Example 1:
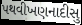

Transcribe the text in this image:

પથવીખણનાદીસુ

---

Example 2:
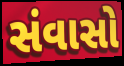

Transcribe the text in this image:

સંવાસો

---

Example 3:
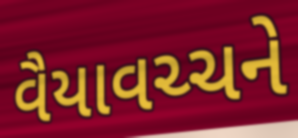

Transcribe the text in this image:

વૈયાવચ્ચને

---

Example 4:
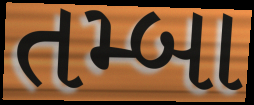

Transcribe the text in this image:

તમ્બા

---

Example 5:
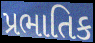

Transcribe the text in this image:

પ્રભાતિક